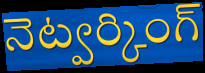
నెట్వర్కింగ్